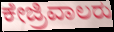
ಕೇಜ್ರಿವಾಲರು